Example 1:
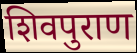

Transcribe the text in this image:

शिवपुराण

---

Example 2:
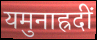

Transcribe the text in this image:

यमुनाह्रदीं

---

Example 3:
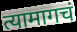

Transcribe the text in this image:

त्यामागचं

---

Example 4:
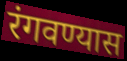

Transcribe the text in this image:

रंगवण्यास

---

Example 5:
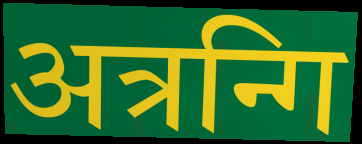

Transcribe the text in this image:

अत्रन्गि